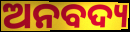
ଅନବଦ୍ୟ